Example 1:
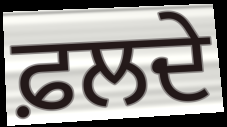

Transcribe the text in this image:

ਫ਼ਲਦੇ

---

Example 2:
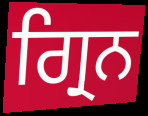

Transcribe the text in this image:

ਗ੍ਰਿਨ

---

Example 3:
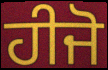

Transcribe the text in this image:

ਹੀਜੋ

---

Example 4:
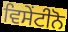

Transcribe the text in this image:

ਵਿਸੇਂਟੀਨੋ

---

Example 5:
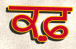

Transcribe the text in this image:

ਕ਼ਫ਼